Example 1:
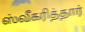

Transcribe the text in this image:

ஸ்வீகரித்தார்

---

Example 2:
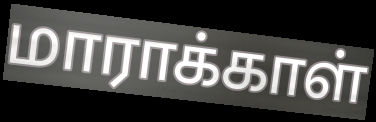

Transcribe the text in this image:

மாராக்காள்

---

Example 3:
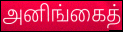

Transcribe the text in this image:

அனிங்கைத்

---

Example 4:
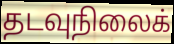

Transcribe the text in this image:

தடவுநிலைக்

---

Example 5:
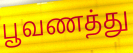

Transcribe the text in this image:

பூவணத்து